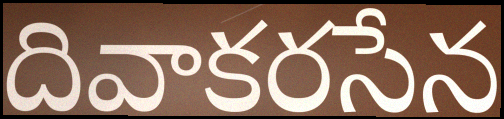
దివాకరసేన